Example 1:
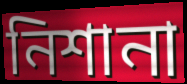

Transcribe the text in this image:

নিশানা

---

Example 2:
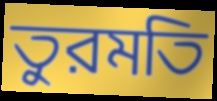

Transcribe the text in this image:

তুরমতি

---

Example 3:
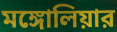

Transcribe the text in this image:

মঙ্গোলিয়ার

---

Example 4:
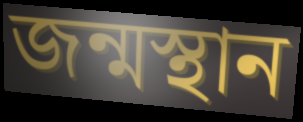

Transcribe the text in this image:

জন্মস্থান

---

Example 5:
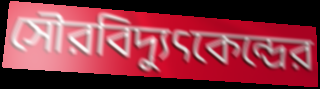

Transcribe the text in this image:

সৌরবিদ্যুৎকেন্দ্রের